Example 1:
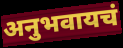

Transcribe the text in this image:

अनुभवायचं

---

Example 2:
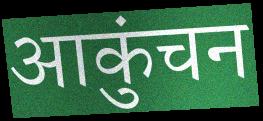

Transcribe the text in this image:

आकुंचन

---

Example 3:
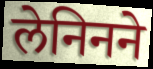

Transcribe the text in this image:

लेनिनने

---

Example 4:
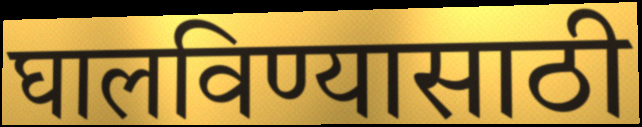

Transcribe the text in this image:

घालविण्यासाठी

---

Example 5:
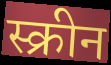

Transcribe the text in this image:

स्क्रीन